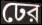
ঢের